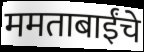
ममताबाईंचे